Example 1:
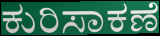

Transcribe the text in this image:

ಕುರಿಸಾಕಣೆ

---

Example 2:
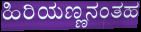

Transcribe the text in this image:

ಹಿರಿಯಣ್ಣನಂತಹ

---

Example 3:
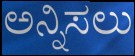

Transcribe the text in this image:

ಅನ್ನಿಸಲು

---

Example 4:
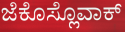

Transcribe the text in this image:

ಜೆಕೊಸ್ಲೊವಾಕ್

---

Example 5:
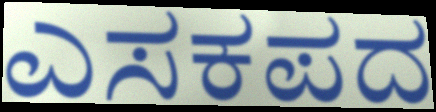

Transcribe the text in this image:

ಎಸಕಪದ